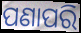
ପଣାପରି